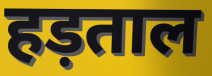
हड़ताल